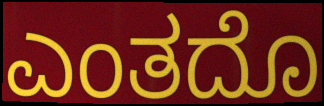
ಎಂತದೊ